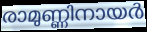
രാമുണ്ണിനായർ